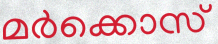
മർക്കൊസ്